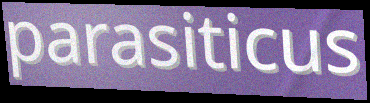
parasiticus